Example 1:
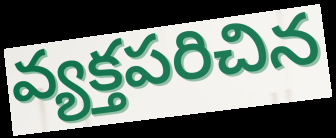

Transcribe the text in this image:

వ్యక్తపరిచిన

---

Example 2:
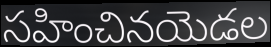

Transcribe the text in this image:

సహించినయెడల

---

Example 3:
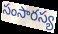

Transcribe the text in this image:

సంసారస్య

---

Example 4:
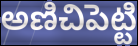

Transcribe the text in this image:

అణిచిపెట్టి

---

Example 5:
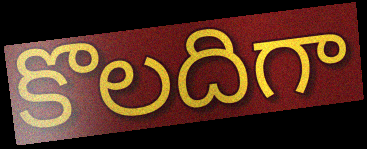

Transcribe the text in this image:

కొలదిగా